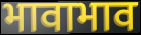
भावाभाव